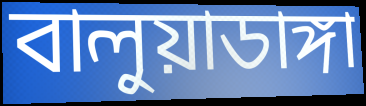
বালুয়াডাঙ্গা